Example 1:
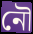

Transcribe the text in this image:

নৌ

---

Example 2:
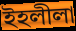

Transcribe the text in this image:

ইহলীলা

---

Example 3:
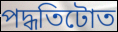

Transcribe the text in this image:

পদ্ধতিটোত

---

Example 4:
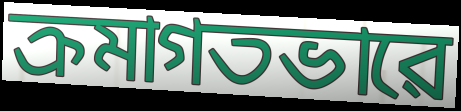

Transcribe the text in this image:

ক্ৰমাগতভাৱে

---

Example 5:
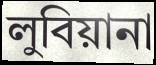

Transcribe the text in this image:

লুবিয়ানা